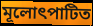
মূলোৎপাটিত